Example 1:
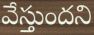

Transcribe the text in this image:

వేస్తుందని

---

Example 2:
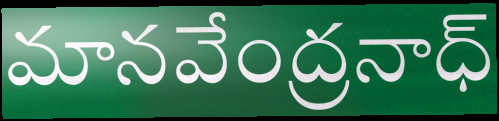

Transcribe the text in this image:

మానవేంద్రనాధ్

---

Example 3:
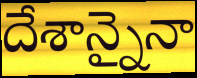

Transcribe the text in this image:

దేశాన్నైనా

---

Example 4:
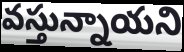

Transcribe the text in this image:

వస్తున్నాయని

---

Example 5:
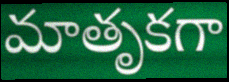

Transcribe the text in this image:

మాతృకగా